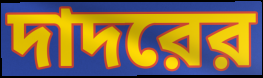
দাদরের